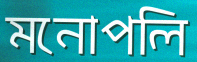
মনোপলি